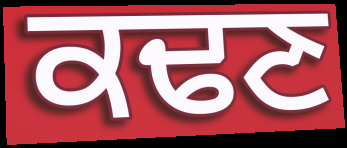
ਕਢਣ